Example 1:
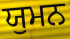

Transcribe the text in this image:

ਯੁਮਨ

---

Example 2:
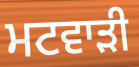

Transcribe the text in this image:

ਮਟਵਾੜੀ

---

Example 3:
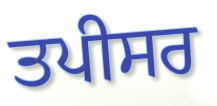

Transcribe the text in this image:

ਤਪੀਸਰ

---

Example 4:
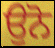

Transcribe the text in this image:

ਉਨੋ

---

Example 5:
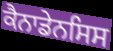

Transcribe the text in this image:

ਕੈਨਾਡੇਨਸਿਸ